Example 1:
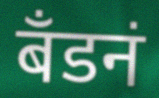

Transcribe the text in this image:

बँडनं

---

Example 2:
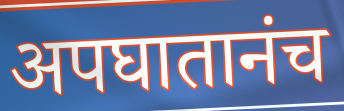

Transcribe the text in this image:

अपघातानंच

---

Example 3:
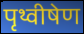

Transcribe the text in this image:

पृथ्वीषेण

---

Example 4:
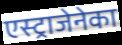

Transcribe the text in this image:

एस्ट्राजेनेका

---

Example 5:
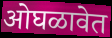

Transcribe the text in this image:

ओघळावेत